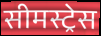
सीमस्ट्रेस